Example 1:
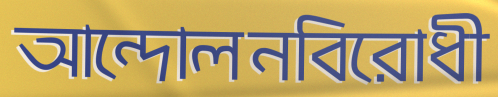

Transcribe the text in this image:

আন্দোলনবিরোধী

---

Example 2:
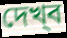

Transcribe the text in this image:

দেখ্‌ব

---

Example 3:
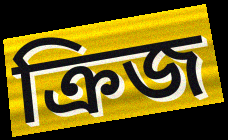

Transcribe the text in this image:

ক্রিজ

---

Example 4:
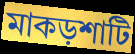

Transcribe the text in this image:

মাকড়শাটি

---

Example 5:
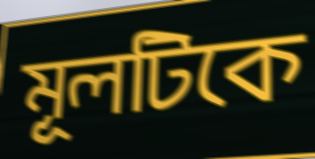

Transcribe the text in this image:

মূলটিকে